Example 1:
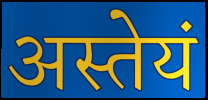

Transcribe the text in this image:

अस्तेयं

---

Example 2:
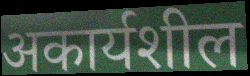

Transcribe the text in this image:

अकार्यशील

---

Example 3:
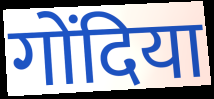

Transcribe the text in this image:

गोंदिया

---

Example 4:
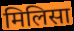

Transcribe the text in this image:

मिलिसा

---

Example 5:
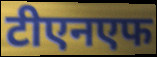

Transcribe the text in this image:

टीएनएफ